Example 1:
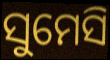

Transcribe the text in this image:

ସୁମେସି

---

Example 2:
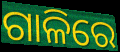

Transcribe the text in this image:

ଗାଳିରେ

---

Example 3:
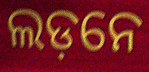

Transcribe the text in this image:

ଲଡ଼ନେ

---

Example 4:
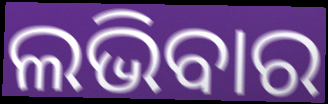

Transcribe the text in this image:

ଲଭିବାର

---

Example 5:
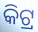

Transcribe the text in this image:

କିଟ୍ର